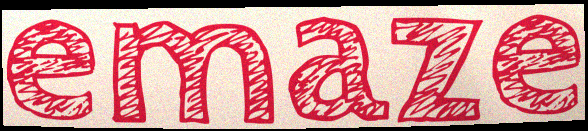
emaze